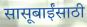
सासूबाईंसाठी